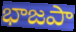
భాజపా